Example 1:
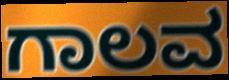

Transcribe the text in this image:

ಗಾಲವ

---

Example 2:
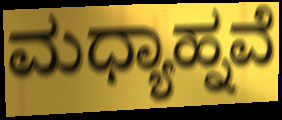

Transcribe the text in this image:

ಮಧ್ಯಾಹ್ನವೆ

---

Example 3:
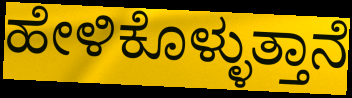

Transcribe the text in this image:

ಹೇಳಿಕೊಳ್ಳುತ್ತಾನೆ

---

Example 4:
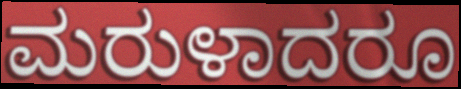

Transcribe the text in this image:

ಮರುಳಾದರೂ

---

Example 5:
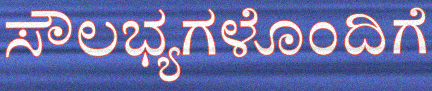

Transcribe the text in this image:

ಸೌಲಭ್ಯಗಳೊಂದಿಗೆ